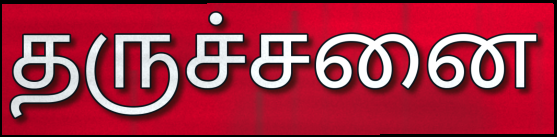
தருச்சனை